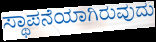
ಸ್ಥಾಪನೆಯಾಗಿರುವುದು